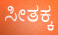
ಸೀತಕ್ಕ